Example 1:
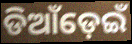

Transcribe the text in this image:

ଡିଆଁଡ଼େଇଁ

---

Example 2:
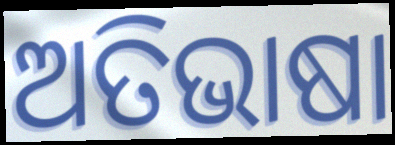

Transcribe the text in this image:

ଅତିଭାଷା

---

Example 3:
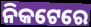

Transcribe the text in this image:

ନିକଟେରେ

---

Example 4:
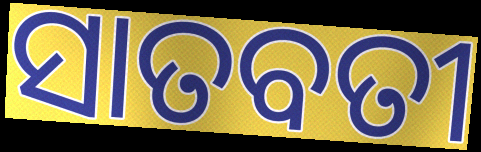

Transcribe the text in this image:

ସାତବତୀ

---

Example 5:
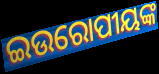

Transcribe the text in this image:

ଇଉରୋପୀୟଙ୍କ